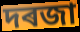
দৰজা